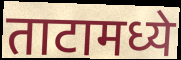
ताटामध्ये